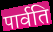
पार्वति